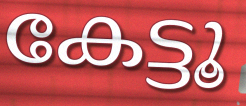
കേട്ടൂ